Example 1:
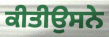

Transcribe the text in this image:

ਕੀਤੀਉਸਨੇ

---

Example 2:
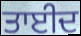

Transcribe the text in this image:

ਤਾਈਦ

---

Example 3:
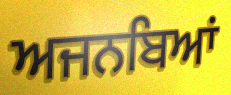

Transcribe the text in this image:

ਅਜਨਬਿਆਂ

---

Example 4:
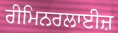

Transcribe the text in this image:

ਰੀਮਿਨਰਲਾਈਜ਼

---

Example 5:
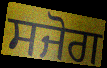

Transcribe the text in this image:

ਸਜੋਗ